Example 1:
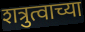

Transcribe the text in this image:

शत्रुत्वाच्या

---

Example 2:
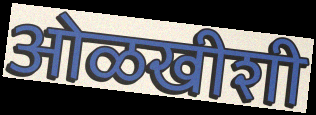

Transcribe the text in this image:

ओळखीशी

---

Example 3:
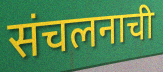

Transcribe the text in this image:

संचलनाची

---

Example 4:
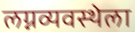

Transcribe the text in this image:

लग्नव्यवस्थेला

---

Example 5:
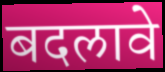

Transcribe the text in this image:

बदलावे